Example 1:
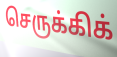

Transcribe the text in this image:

செருக்கிக்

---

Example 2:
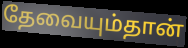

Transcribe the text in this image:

தேவையும்தான்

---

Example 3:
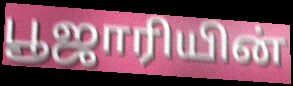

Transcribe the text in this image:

பூஜாரியின்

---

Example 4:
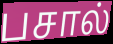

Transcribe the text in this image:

பசால்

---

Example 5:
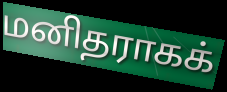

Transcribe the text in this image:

மனிதராகக்